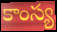
కాంస్య